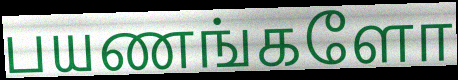
பயணங்களோ